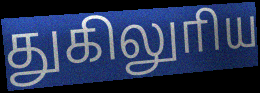
துகிலுரிய